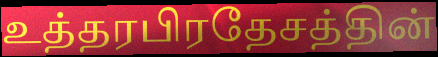
உத்தரபிரதேசத்தின்